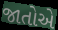
જાતોએ